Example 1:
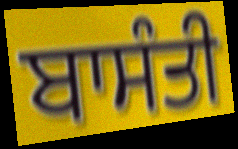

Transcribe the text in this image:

ਬਾਸੰਤੀ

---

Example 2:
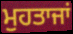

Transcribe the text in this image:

ਮੁਹਤਾਜਾਂ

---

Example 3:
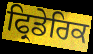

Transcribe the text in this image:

ਫ੍ਰਿਡੇਰਿਕ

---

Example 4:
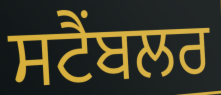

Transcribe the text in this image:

ਸਟੈਂਬਲਰ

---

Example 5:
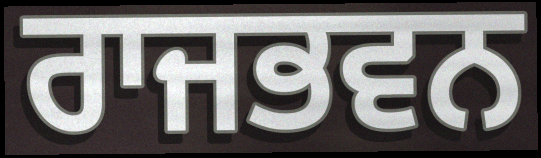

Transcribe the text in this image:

ਰਾਜਭਵਨ